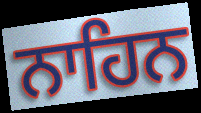
ਨਾਹਿਨ